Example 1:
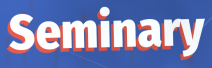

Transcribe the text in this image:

Seminary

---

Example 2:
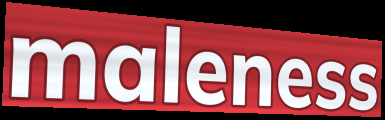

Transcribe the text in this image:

maleness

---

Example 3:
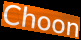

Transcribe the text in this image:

Choon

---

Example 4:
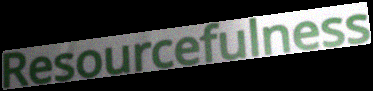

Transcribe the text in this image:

Resourcefulness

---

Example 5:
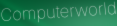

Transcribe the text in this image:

Computerworld